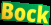
Bock